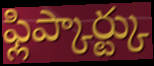
ఫ్లిప్కార్ట్కు